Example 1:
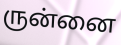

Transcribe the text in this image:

ருன்னை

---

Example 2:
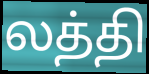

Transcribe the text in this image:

லத்தி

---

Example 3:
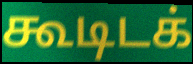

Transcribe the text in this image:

கூடிடக்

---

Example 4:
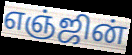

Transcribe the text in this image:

எஞ்ஜின்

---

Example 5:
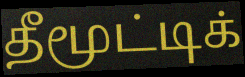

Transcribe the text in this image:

தீமூட்டிக்